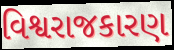
વિશ્વરાજકારણ